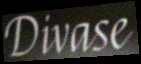
Divase